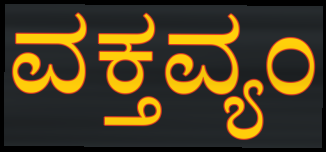
ವಕ್ತವ್ಯಂ